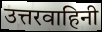
उत्तरवाहिनी